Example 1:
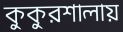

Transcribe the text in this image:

কুকুরশালায়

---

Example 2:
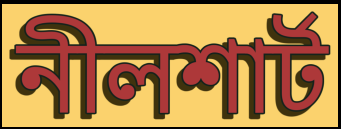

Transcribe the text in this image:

নীলশার্ট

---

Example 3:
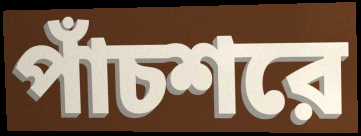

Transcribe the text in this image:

পাঁচশরে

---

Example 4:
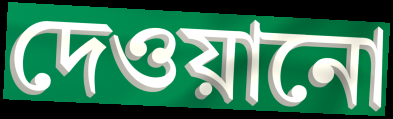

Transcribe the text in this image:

দেওয়ানো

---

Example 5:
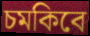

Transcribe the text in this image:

চমকিবে